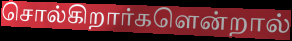
சொல்கிறார்களென்றால்